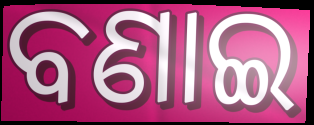
ବଣାଇ